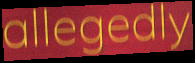
allegedly